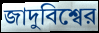
জাদুবিশ্বের